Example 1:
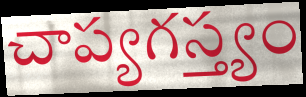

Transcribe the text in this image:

చాప్యగస్త్యం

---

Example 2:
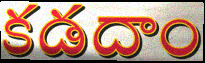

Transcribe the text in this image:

కడదాం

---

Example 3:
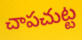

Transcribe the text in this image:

చాపచుట్ట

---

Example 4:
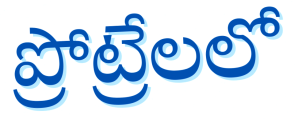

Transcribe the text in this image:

ప్రోట్రేలలో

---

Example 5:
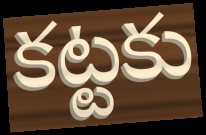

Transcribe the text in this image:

కట్టకు